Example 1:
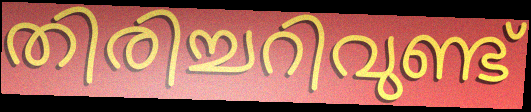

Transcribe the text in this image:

തിരിച്ചറിവുണ്ട്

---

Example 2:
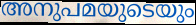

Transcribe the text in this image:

അനുപമയുടെയും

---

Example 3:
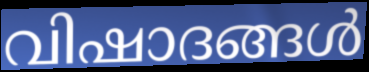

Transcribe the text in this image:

വിഷാദങ്ങൾ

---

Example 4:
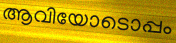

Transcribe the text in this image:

ആവിയോടൊപ്പം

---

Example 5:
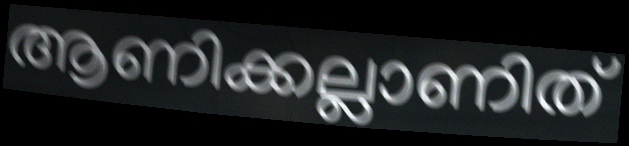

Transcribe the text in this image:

ആണിക്കല്ലാണിത്